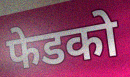
फेडको